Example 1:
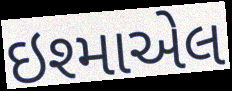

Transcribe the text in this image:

ઇશ્માએલ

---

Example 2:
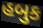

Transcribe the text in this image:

હબુક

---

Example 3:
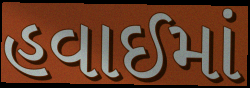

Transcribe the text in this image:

હવાઈમાં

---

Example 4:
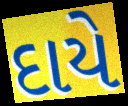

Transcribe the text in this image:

દાયે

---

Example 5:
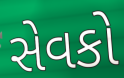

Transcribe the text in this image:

સેવકો